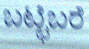
ಬಟ್ಟೆಬರೆ